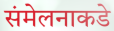
संमेलनाकडे